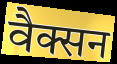
वैक्सन